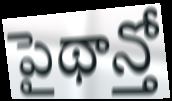
పైథాన్తో